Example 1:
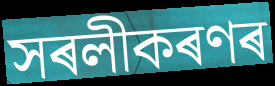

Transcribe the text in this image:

সৰলীকৰণৰ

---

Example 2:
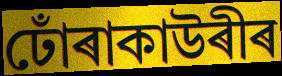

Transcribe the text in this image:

ঢোঁৰাকাউৰীৰ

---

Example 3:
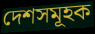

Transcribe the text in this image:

দেশসমূহক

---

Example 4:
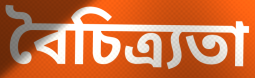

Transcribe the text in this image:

বৈচিত্ৰ্যতা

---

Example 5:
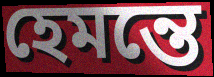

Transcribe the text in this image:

হেমন্তে